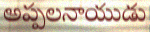
అప్పలనాయుడు